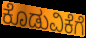
ಕೊಡುವಿಕೆಗೆ